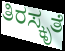
ತಿರಸ್ಕೃತೆ